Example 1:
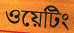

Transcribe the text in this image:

ওয়েটিং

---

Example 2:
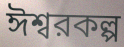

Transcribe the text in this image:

ঈশ্বরকল্প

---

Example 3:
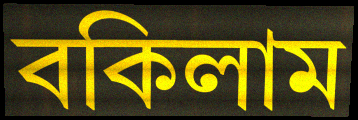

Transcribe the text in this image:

বকিলাম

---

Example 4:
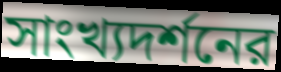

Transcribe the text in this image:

সাংখ্যদর্শনের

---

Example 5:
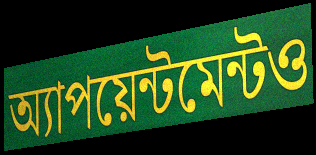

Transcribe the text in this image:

অ্যাপয়েন্টমেন্টও